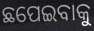
ଛପେଇବାକୁ